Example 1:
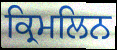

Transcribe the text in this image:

ਕ੍ਰਿਮਲਿਨ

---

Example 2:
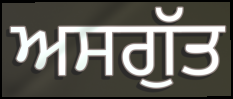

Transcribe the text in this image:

ਅਸਗੁੱਤ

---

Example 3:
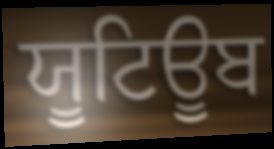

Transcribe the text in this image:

ਯੂਟਿਊਬ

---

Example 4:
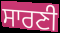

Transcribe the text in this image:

ਸਾਰਣੀ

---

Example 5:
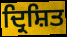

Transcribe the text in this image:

ਦ੍ਰਿਸ਼ਿਤ